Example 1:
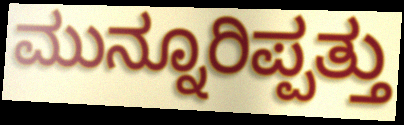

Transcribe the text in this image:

ಮುನ್ನೂರಿಪ್ಪತ್ತು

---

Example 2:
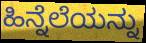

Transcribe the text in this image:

ಹಿನ್ನೆಲೆಯನ್ನು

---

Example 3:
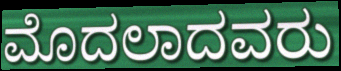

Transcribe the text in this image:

ಮೊದಲಾದವರು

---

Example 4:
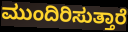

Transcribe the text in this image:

ಮುಂದಿರಿಸುತ್ತಾರೆ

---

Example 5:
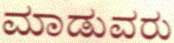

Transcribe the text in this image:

ಮಾಡುವರು